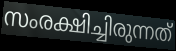
സംരക്ഷിച്ചിരുന്നത്